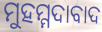
ମୁହମ୍ମଦାବାଦ